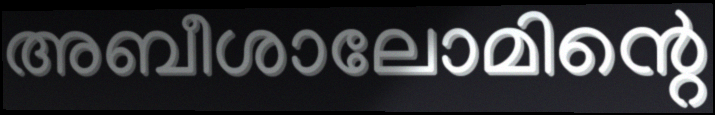
അബീശാലോമിന്റെ